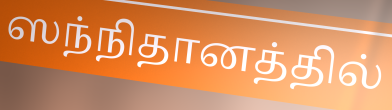
ஸந்நிதானத்தில்